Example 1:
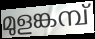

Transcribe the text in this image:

മുളങ്കമ്പ്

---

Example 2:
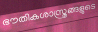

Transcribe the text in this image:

ഭൗതികശാസ്ത്രങ്ങളുടെ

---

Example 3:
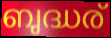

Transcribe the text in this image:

ബുദ്ധര്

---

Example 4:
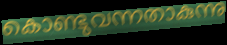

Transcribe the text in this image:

കൊണ്ടുവന്നതാകുന്നു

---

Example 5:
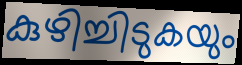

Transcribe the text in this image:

കുഴിച്ചിടുകയും